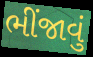
ભીંજાવું